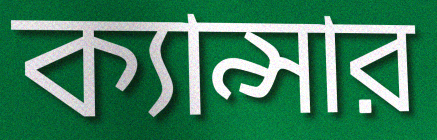
ক্যান্সার